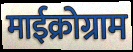
माईक्रोग्राम